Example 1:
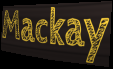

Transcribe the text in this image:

Mackay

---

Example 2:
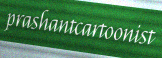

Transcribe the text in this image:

prashantcartoonist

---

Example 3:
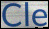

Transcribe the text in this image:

Cle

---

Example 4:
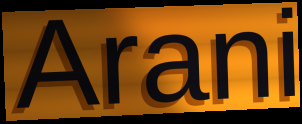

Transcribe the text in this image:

Arani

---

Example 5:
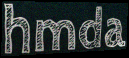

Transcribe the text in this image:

hmda